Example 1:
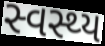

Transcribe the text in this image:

સ્વસ્થ્ય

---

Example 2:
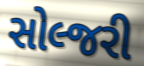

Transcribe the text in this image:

સોલ્જરી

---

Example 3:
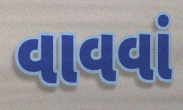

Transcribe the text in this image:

વાવવાં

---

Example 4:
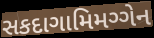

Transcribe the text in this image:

સકદાગામિમગ્ગેન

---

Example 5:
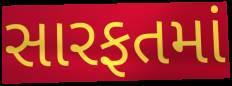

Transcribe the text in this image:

સારફતમાં